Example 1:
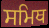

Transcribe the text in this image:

ਸਮਿਥ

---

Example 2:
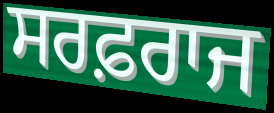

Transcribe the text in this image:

ਸਰਫ਼ਰਾਜ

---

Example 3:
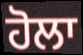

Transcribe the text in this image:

ਹੋਲਾ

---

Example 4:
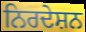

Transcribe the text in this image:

ਨਿਰਦੇਸ਼ਨ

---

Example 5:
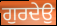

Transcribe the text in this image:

ਗੁਰਦੇਉ